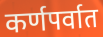
कर्णपर्वात